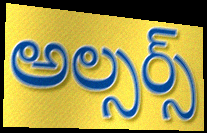
అల్సర్స్